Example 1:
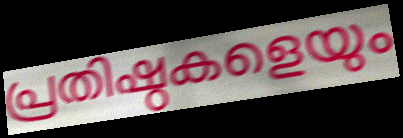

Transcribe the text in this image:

പ്രതിഷ്ഠകളെയും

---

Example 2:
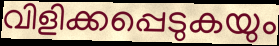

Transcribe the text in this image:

വിളിക്കപ്പെടുകയും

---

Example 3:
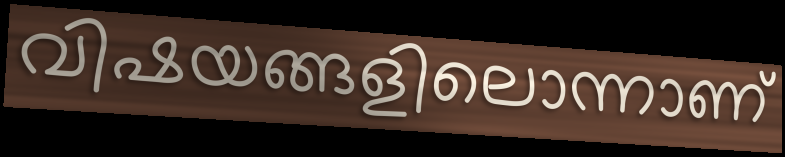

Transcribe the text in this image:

വിഷയങ്ങളിലൊന്നാണ്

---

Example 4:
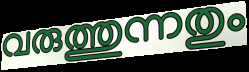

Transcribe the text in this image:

വരുത്തുന്നതും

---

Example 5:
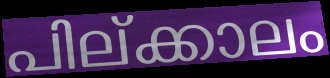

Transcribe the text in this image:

പില്ക്കാലം